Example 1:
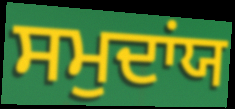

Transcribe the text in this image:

ਸਮੁਦਾਂਯ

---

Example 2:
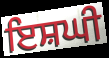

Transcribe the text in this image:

ਇਸ਼ਘੀ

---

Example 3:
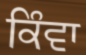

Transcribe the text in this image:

ਕਿੰਵਾ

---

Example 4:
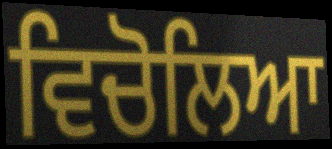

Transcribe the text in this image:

ਵਿਚੋਲਿਆ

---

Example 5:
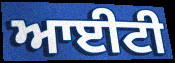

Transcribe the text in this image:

ਆਈਟੀ